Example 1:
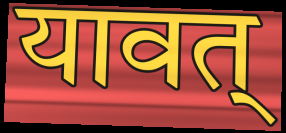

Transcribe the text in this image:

यावत्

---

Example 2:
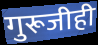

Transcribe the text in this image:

गुरूजीही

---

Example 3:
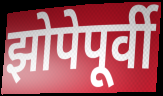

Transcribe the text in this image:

झोपेपूर्वी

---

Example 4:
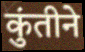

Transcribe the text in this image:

कुंतीने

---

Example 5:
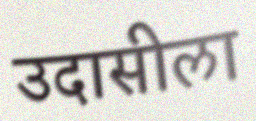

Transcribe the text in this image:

उदासीला